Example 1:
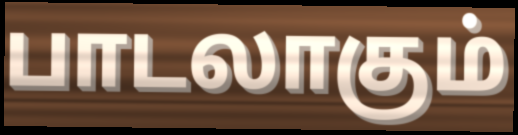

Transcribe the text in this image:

பாடலாகும்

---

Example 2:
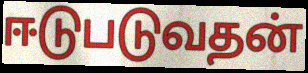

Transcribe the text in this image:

ஈடுபடுவதன்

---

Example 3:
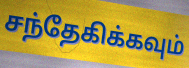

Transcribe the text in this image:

சந்தேகிக்கவும்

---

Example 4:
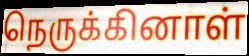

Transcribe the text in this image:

நெருக்கினாள்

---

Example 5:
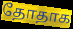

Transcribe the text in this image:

தோதாக